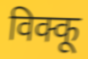
विक्कू